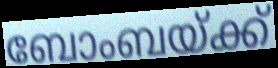
ബോംബയ്ക്ക്